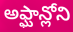
అఫ్ఘాన్లోని